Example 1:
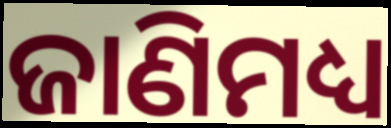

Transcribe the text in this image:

ଜାଣିମଧ୍ୟ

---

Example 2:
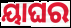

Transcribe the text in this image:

ୟାଘର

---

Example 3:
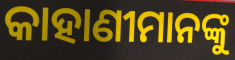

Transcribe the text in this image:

କାହାଣୀମାନଙ୍କୁ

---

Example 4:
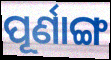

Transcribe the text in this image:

ପୂର୍ଣାଙ୍ଗ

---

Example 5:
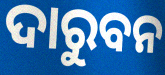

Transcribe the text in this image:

ଦାରୁବନ